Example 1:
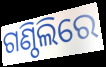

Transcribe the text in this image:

ଗଣ୍ଠିଲିରେ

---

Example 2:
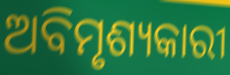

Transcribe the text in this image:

ଅବିମୃଶ୍ୟକାରୀ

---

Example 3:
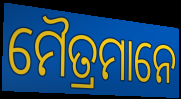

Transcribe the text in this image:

ମୈତ୍ରମାନେ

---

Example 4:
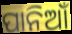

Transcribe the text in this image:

ପାନିଆଁ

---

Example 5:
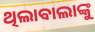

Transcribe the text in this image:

ଥିଲାବାଲାଙ୍କୁ